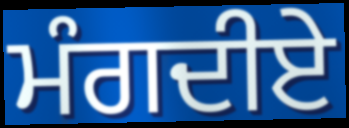
ਮੰਗਦੀਏ